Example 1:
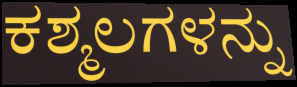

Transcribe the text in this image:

ಕಶ್ಮಲಗಳನ್ನು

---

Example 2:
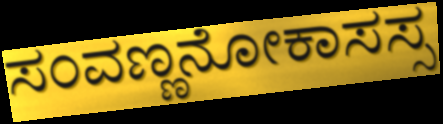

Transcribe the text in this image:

ಸಂವಣ್ಣನೋಕಾಸಸ್ಸ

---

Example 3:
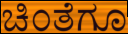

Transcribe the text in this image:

ಚಿಂತೆಗೂ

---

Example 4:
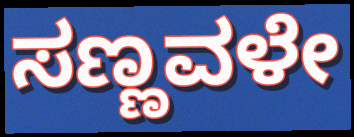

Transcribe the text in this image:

ಸಣ್ಣವಳೇ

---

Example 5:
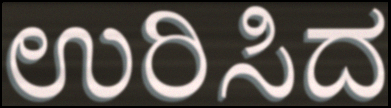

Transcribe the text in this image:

ಉರಿಸಿದ